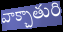
వాక్చాతురి